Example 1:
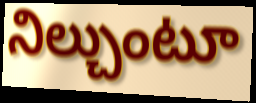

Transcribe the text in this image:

నిల్చుంటూ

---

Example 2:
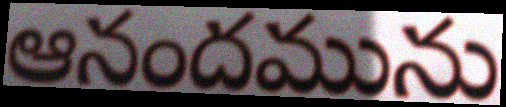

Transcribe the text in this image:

ఆనందమును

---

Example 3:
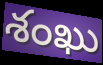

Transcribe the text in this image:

శంఖు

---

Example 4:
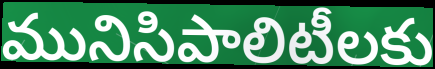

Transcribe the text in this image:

మునిసిపాలిటీలకు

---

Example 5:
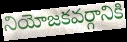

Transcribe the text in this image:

నియోజకవర్గానికి